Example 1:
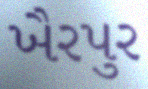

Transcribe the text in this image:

ખૈરપુર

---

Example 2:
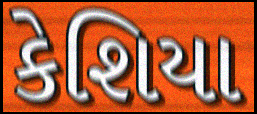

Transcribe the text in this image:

કેશિયા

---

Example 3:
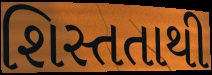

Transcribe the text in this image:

શિસ્તતાથી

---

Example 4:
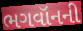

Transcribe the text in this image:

ભગવૉનની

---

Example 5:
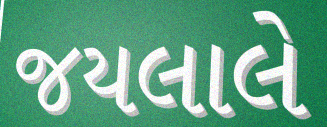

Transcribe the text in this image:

જયલાલે